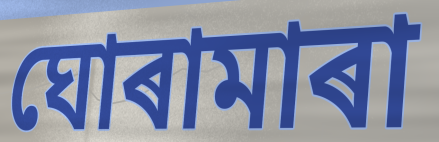
ঘোৰামাৰা